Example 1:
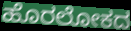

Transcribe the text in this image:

ಹೊರಲೋಕದ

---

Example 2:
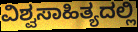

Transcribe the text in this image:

ವಿಶ್ವಸಾಹಿತ್ಯದಲ್ಲಿ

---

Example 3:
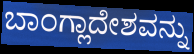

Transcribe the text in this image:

ಬಾಂಗ್ಲಾದೇಶವನ್ನು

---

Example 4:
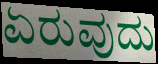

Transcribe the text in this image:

ಏರುವುದು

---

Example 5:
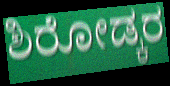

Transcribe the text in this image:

ಶಿರೋಡ್ಕರ